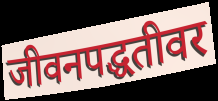
जीवनपद्धतीवर